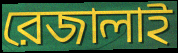
রেজালাই